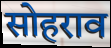
सोहराव